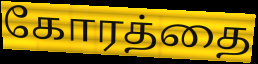
கோரத்தை